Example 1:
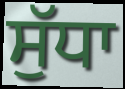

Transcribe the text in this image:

ਸੁੱਧਾ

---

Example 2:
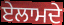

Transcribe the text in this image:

ਏਲਾਮਦੇ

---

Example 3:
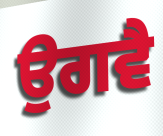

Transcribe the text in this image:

ਉਗਵੈ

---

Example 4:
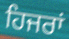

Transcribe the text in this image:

ਹਿਜਰਾਂ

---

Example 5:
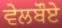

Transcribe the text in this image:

ਵੇਲਬੌਏ